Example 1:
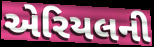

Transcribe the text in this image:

એરિયલની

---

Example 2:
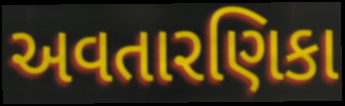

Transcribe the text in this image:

અવતારણિકા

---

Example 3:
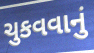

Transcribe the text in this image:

ચુકવવાનું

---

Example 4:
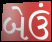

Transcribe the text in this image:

બેઉં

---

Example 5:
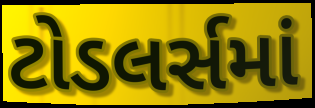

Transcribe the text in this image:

ટોડલર્સમાં